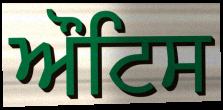
ਔਟਿਸ